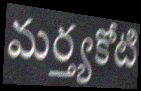
మర్త్యకోటి